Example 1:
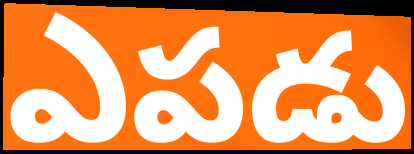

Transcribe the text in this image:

ఎపడు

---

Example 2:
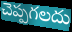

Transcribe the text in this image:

చెప్పగలదు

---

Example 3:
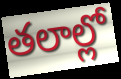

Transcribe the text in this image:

తలాల్లో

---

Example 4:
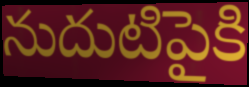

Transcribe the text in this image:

నుదుటిపైకి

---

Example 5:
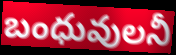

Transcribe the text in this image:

బంధువులనీ